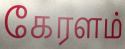
கேரளம்